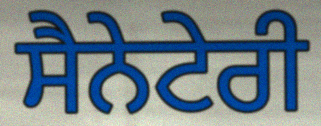
ਸੈਨੇਟੇਰੀ